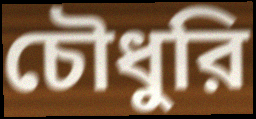
চৌধুরি